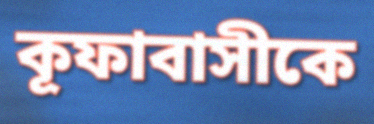
কূফাবাসীকে